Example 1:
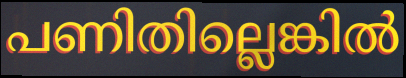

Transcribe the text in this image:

പണിതില്ലെങ്കിൽ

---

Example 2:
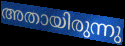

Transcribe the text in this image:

അതായിരുന്നു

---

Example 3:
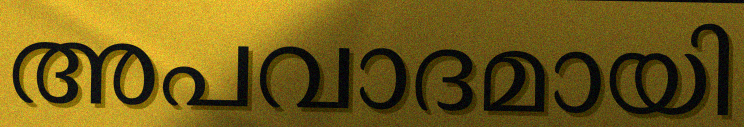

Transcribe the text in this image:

അപവാദമായി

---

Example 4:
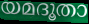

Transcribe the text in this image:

യമദൂതാ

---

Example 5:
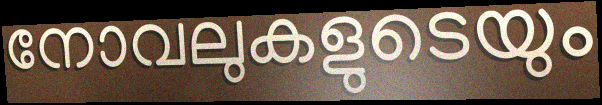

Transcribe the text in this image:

നോവലുകളുടെയും